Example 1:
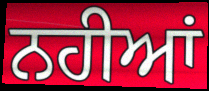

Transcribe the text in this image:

ਨਹੀਆਂ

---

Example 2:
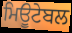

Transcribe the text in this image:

ਮਿਊਟੇਬਲ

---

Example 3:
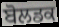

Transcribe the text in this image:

ਬੋਲਡਕ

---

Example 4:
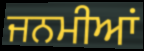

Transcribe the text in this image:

ਜਨਮੀਆਂ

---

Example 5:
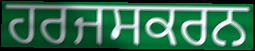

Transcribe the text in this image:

ਹਰਜਸਕਰਨ